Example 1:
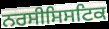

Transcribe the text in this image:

ਨਰਸੀਸਿਸਟਿਕ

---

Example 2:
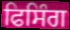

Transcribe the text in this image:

ਫਿਸਿੰਗ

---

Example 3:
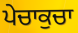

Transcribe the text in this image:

ਪੇਚਾਕੁਚਾ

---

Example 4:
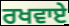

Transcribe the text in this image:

ਰਖਵਾਏ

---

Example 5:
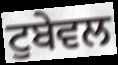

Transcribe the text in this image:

ਟੁਬੇਵਲ